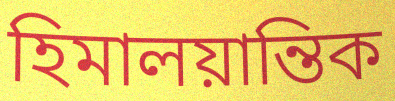
হিমালয়ান্তিক